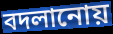
বদলানোয়